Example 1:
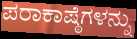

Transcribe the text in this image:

ಪರಾಕಾಷ್ಠೆಗಳನ್ನು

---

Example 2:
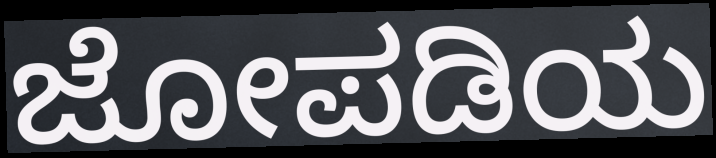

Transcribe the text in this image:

ಜೋಪಡಿಯ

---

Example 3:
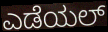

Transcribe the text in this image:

ಎಡೆಯಲ್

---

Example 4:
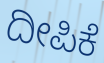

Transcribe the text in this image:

ದೀಪಿಕೆ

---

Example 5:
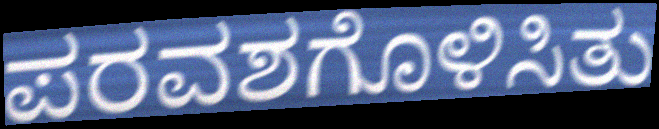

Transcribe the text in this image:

ಪರವಶಗೊಳಿಸಿತು